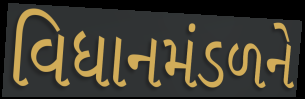
વિધાનમંડળને